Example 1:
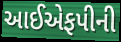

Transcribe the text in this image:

આઈએફપીની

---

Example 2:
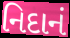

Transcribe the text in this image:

નિદાનં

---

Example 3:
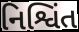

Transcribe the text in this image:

નિશ્વિંત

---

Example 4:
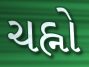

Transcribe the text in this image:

ચહ્નો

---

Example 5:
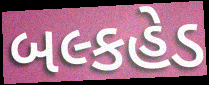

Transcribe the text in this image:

બલ્કહેડ